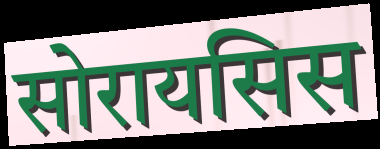
सोरायसिस